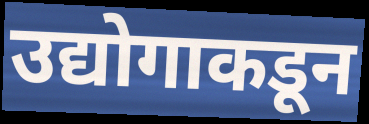
उद्योगाकडून